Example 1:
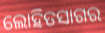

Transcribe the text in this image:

ଲୋହିତସାଗର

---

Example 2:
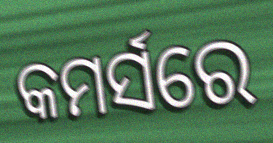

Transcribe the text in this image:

କମର୍ସରେ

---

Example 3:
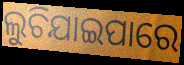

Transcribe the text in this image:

ଲୁଚିଯାଇପାରେ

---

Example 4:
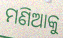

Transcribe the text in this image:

ମଣିଆକୁ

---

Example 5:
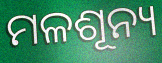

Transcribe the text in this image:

ମଳଶୂନ୍ୟ